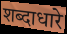
शब्दाधारे